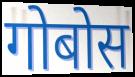
गोबोस